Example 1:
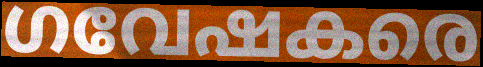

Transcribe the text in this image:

ഗവേഷകരെ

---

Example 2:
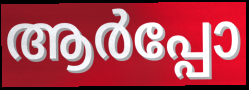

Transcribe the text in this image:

ആർപ്പോ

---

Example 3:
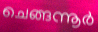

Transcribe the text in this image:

ചെങ്ങന്നൂർ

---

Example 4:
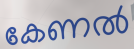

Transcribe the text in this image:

കേണൽ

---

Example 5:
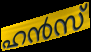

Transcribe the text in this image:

ഹൻസ്